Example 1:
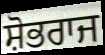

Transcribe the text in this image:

ਸ਼ੋਭਰਾਜ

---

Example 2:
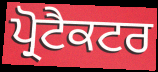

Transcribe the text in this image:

ਪ੍ਰੋਟੈਕਟਰ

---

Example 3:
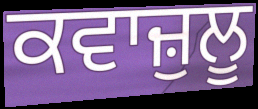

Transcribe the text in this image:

ਕਵਾਜ਼ੁਲੂ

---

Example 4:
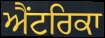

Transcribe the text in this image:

ਐਂਟਰਿਕਾ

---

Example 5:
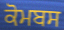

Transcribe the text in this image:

ਕੋਮਬਸ